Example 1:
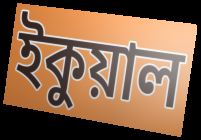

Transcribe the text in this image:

ইকুয়াল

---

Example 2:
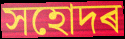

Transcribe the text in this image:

সহোদৰ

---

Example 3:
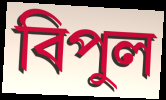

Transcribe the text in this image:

বিপুল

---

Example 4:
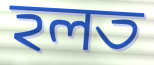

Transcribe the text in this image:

হলত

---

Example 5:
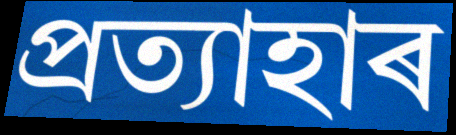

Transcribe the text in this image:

প্ৰত্যাহাৰ